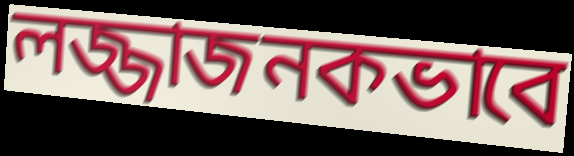
লজ্জাজনকভাবে